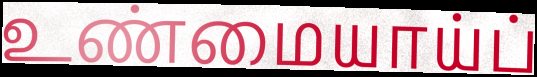
உண்மையாய்ப்